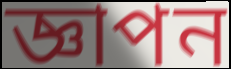
জ্ঞাপন